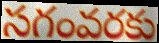
సగంవరకు